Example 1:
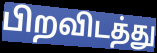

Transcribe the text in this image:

பிறவிடத்து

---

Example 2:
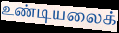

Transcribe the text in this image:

உண்டியலைக்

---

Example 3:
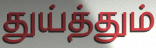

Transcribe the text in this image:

துய்த்தும்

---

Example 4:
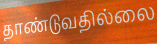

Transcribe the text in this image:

தாண்டுவதில்லை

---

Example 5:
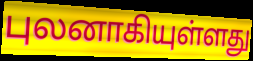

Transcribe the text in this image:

புலனாகியுள்ளது